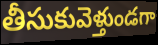
తీసుకువెళ్తుండగా